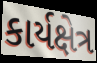
કાર્યક્ષેત્ર